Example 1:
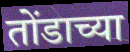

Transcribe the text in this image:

तोंडाच्या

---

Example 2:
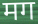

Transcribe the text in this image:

मग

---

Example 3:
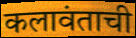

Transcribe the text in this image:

कलावंताची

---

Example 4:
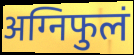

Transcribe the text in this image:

अग्निफुलं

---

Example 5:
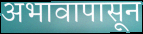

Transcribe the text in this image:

अभावापासून